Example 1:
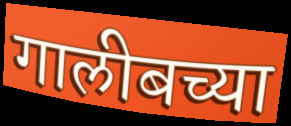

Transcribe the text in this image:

गालीबच्या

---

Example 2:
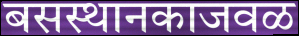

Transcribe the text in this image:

बसस्थानकाजवळ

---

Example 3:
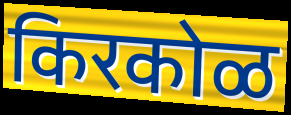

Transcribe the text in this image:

किरकोळ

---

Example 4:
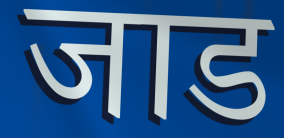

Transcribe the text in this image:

जाड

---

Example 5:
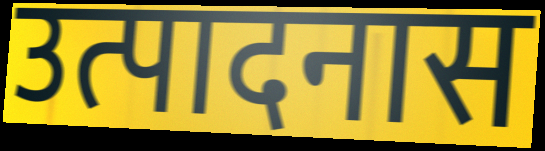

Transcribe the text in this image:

उत्पादनास